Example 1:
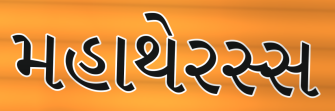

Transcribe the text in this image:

મહાથેરસ્સ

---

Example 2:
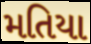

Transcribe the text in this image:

મતિયા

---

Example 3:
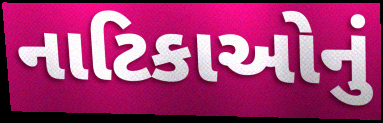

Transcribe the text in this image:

નાટિકાઓનું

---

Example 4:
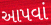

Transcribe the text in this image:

આપવાં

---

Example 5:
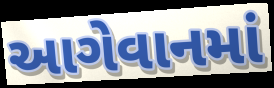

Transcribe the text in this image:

આગેવાનમાં